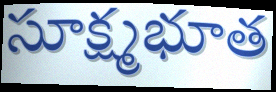
సూక్ష్మభూత